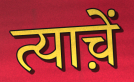
त्याच़ें